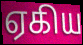
ஏகிய